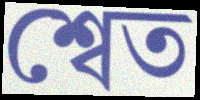
শ্বেত